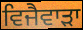
ਵਿਜੈਵਾੜਾ